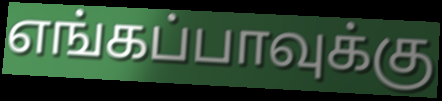
எங்கப்பாவுக்கு